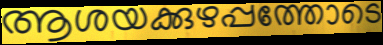
ആശയക്കുഴപ്പത്തോടെ